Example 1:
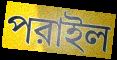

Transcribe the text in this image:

পরাইল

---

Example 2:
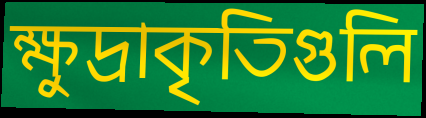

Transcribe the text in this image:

ক্ষুদ্রাকৃতিগুলি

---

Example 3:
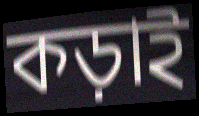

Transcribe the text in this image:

কড়াই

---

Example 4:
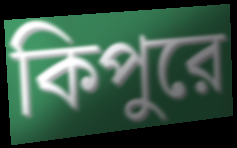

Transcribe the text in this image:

কিপুরে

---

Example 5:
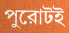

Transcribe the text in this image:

পুরোটই